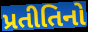
પ્રતીતિનો